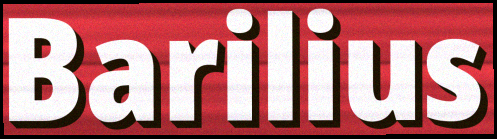
Barilius